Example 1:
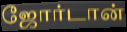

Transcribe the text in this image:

ஜோர்டான்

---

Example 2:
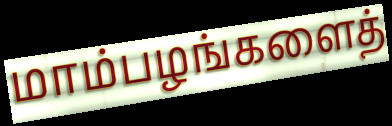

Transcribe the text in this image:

மாம்பழங்களைத்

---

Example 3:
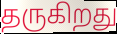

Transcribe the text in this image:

தருகிறது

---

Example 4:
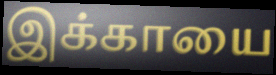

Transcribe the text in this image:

இக்காயை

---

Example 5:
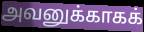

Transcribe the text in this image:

அவனுக்காகக்